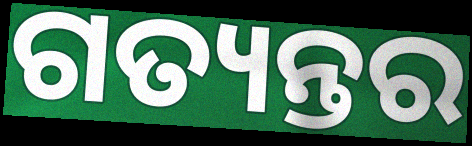
ଗତ୍ୟନ୍ତର